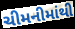
ચીમનીમાંથી